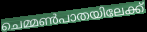
ചെമ്മൺപാതയിലേക്ക്